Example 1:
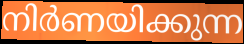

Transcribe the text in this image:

നിർണയിക്കുന്ന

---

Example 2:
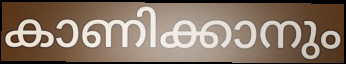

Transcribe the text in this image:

കാണിക്കാനും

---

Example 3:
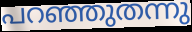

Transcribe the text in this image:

പറഞ്ഞുതന്നു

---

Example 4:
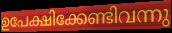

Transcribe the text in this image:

ഉപേക്ഷിക്കേണ്ടിവന്നു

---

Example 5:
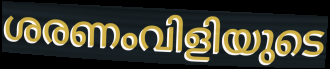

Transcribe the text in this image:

ശരണംവിളിയുടെ